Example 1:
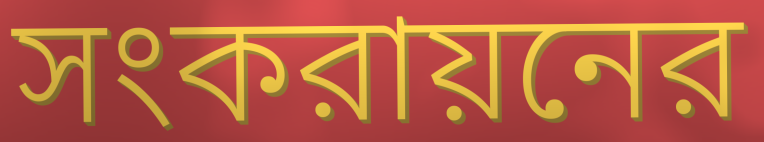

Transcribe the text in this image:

সংকরায়নের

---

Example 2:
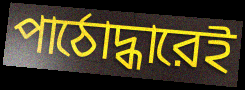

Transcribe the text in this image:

পাঠোদ্ধারেই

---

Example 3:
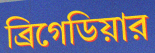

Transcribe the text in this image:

ব্রিগেডিয়ার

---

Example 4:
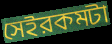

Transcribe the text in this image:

সেইরকমটা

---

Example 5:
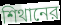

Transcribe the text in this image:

শিথানের